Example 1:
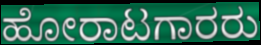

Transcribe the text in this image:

ಹೋರಾಟಗಾರರು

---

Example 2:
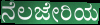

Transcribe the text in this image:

ನೆಲಜೇರಿಯ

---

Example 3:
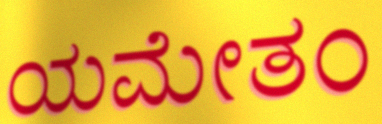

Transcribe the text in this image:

ಯಮೇತಂ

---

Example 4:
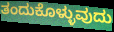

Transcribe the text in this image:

ತಂದುಕೊಳ್ಳುವುದು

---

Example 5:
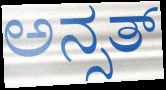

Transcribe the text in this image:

ಅನ್ಸತ್